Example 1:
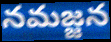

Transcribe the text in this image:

నమజ్జన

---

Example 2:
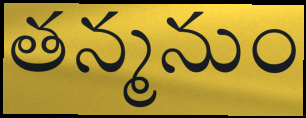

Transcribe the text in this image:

తన్మనుం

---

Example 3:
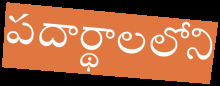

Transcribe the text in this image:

పదార్థాలలోని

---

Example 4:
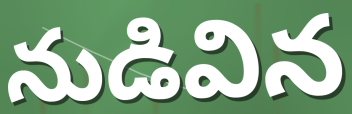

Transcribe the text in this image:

నుడివిన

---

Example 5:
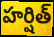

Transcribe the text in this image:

హర్షిత్